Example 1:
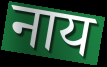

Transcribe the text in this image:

नाय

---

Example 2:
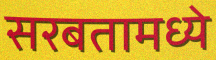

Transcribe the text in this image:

सरबतामध्ये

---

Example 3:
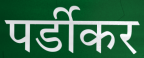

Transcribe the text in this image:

पर्डीकर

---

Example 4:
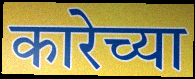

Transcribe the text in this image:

कारेच्या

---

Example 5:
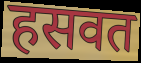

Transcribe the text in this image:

हसवत